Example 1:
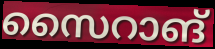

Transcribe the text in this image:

സൈറാങ്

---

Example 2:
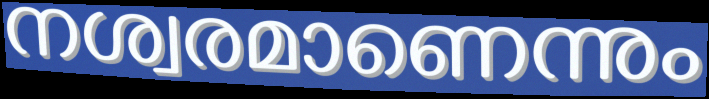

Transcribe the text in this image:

നശ്വരമാണെന്നും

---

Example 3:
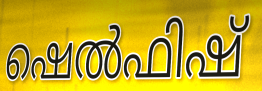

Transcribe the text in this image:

ഷെൽഫിഷ്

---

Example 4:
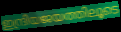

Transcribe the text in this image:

ഇന്ദ്രിയജയത്തിലൂടെ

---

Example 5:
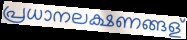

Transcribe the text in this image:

പ്രധാനലക്ഷണങ്ങള്